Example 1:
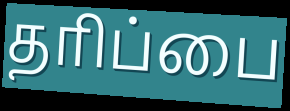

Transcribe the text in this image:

தரிப்பை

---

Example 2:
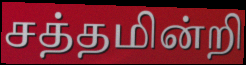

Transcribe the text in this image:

சத்தமின்றி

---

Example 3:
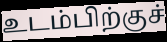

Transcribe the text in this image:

உடம்பிற்குச்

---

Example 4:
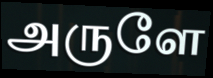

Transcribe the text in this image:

அருளே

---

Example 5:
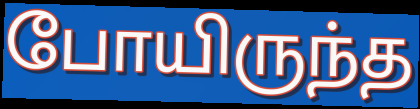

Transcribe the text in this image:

போயிருந்த